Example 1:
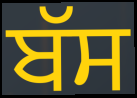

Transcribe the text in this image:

ਬੱਸ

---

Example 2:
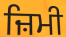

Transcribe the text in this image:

ਜ਼ਿਮੀ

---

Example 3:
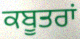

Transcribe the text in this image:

ਕਬੂਤਰਾਂ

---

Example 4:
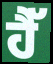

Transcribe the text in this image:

ਹੈੱ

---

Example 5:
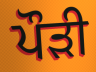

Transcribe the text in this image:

ਪੌੜੀ